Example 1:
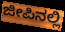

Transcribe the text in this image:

ಜೀಪಿನಲ್ಲಿ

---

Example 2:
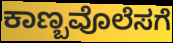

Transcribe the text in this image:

ಕಾಣ್ಬವೊಲೆಸಗೆ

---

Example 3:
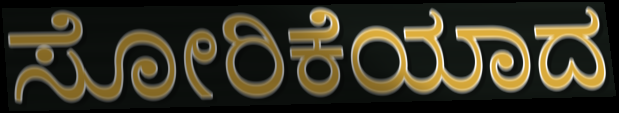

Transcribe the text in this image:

ಸೋರಿಕೆಯಾದ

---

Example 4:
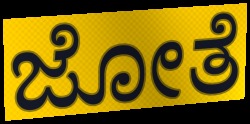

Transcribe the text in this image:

ಜೋತೆ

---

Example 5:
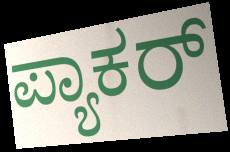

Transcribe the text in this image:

ಪ್ಯಾಕರ್